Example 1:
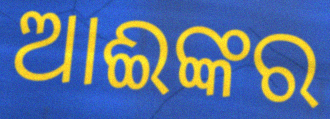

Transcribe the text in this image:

ଆଈଙ୍କର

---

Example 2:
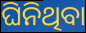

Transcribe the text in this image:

ଘିନିଥିବା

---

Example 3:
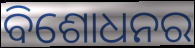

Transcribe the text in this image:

ବିଶୋଧନର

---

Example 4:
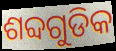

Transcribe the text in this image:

ଶବ୍ଦଗୁଡିକ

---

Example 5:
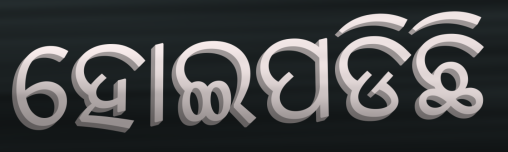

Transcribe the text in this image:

ହୋଇପଡିଛି